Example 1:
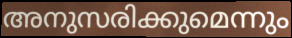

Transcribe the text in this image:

അനുസരിക്കുമെന്നും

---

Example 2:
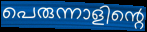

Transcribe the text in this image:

പെരുന്നാളിന്റെ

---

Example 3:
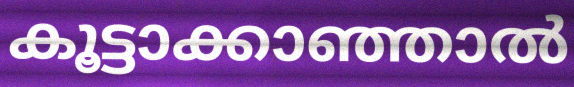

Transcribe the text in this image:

കൂട്ടാക്കാഞ്ഞാൽ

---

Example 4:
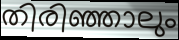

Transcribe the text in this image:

തിരിഞ്ഞാലും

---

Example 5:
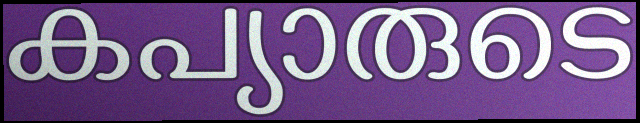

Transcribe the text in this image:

കപ്യാരുടെ